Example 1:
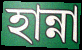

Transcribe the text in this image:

হান্না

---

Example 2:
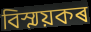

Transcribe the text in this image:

বিস্ময়কৰ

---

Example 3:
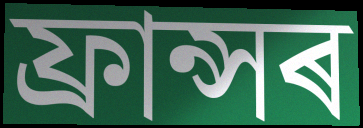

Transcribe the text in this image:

ফ্ৰান্সৰ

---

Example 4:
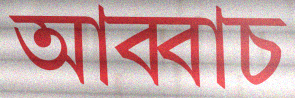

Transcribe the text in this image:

আব্বাচ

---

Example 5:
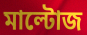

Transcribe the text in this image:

মাল্টোজ